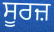
ਸੂਰਜ਼